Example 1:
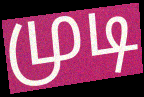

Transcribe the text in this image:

முடி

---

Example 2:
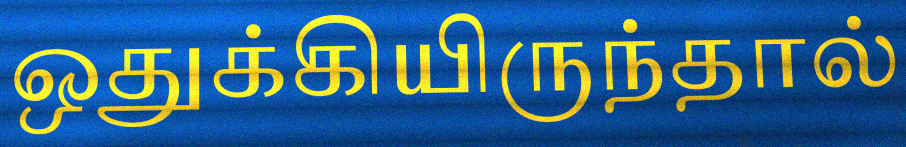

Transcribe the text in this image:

ஒதுக்கியிருந்தால்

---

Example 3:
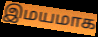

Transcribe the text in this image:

இமயமாக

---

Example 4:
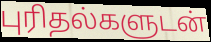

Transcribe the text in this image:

புரிதல்களுடன்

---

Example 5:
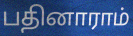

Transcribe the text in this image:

பதினாராம்